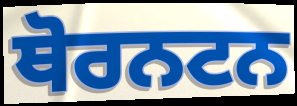
ਥੋਰਨਟਨ